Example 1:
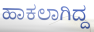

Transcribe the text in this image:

ಹಾಕಲಾಗಿದ್ದ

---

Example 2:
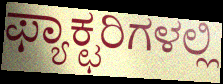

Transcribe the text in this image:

ಫ್ಯಾಕ್ಟರಿಗಳಲ್ಲಿ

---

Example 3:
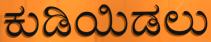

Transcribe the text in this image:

ಕುಡಿಯಿಡಲು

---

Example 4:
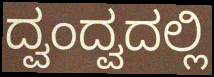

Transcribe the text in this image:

ದ್ವಂದ್ವದಲ್ಲಿ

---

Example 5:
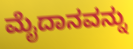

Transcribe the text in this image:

ಮೈದಾನವನ್ನು